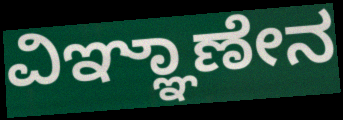
ವಿಞ್ಞಾಣೇನ